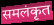
समलंकृत